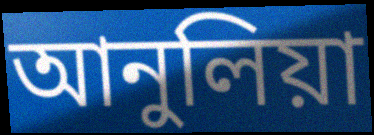
আনুলিয়া